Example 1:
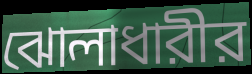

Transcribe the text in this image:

ঝোলাধারীর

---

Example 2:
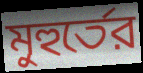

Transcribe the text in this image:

মুহুর্তের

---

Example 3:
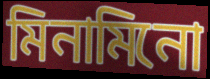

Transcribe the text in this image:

মিনামিনো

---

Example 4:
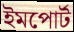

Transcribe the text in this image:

ইমপোর্ট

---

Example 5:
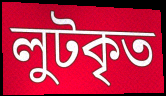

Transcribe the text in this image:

লুটকৃত